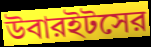
উবারইটসের